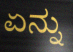
ಏನ್ನು